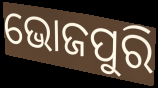
ଭୋଜପୁରି